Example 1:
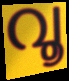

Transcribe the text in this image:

വൂ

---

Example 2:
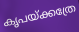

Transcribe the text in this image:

കൃപയ്ക്കത്രേ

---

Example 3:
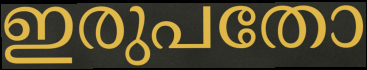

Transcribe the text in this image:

ഇരുപതോ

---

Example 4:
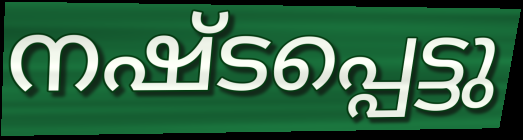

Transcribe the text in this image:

നഷ്ടപ്പെട്ടു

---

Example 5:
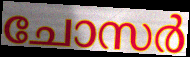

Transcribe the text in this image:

ചോസർ